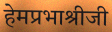
हेमप्रभाश्रीजी